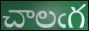
చాలఁగ